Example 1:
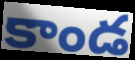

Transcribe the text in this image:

కాండ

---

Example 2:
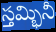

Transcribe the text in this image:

స్తమ్భినీ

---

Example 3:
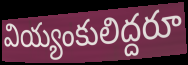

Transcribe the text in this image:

వియ్యంకులిద్దరూ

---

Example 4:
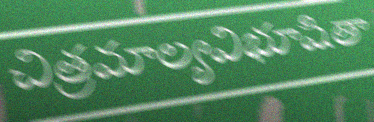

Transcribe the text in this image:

చిత్రమాల్యవిభూషితా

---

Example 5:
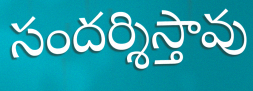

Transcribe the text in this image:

సందర్శిస్తావు